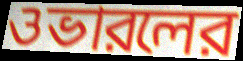
ওভারলের